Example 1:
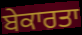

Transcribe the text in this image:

ਬੇਕਾਰਤਾ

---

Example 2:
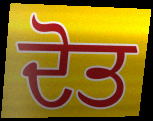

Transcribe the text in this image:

ਦੋਤ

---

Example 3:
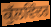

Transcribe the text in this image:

ਕੁੱਲਵਿੰਦਰ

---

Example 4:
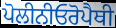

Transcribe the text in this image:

ਪੋਲੀਨੀਓਰੋਪੈਥੀ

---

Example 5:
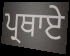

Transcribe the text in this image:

ਪ੍ਰਥਾਏ